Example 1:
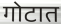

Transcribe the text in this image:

गोटात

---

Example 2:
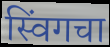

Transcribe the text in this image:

स्विंगचा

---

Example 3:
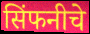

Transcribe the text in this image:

सिंफनीचे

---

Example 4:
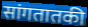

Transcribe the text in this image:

सांगतातकी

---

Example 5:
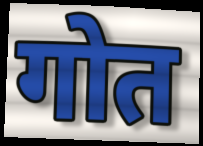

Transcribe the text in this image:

गोत